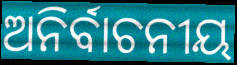
ଅନିର୍ବାଚନୀୟ